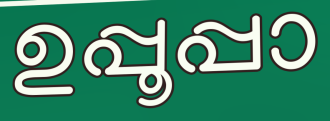
ഉപ്പൂപ്പാ